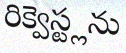
రిక్వెస్ట్లను